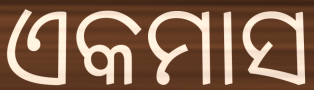
ଏକମାସ